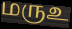
மருஉ